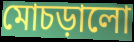
মোচড়ালো